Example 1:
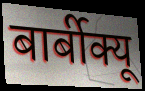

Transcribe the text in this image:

बार्बीक्यू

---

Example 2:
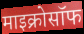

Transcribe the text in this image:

माइक्रोसॉफ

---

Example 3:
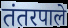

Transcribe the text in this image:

तंतरपाले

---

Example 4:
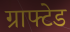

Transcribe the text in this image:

ग्राफ्टेड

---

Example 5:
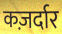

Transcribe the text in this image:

कज़र्दार